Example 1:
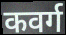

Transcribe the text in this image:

कवर्ग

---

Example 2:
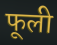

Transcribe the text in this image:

फूली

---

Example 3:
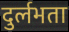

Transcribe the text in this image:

दुर्लभता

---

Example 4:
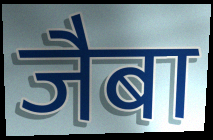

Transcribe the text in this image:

जैबा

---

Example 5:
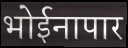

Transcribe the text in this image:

भोईनापार